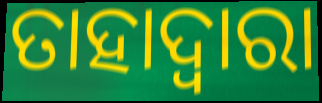
ତାହାଦ୍ୱାରା